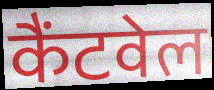
कैंटवेल